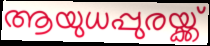
ആയുധപ്പുരയ്ക്ക്